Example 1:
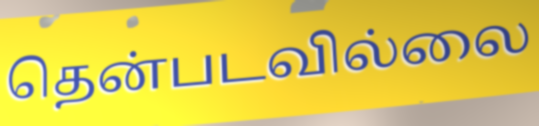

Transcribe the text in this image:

தென்படவில்லை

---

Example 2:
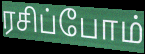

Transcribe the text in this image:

ரசிப்போம்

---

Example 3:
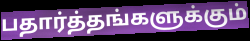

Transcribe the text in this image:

பதார்த்தங்களுக்கும்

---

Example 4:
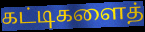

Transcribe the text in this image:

கட்டிகளைத்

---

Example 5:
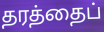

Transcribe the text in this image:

தரத்தைப்